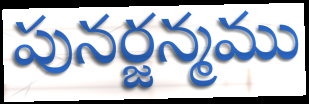
పునర్జన్మము